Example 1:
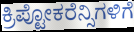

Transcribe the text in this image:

ಕ್ರಿಪ್ಟೋಕರೆನ್ಸಿಗಳಿಗೆ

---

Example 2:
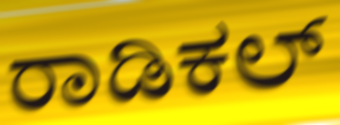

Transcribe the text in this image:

ರಾಡಿಕಲ್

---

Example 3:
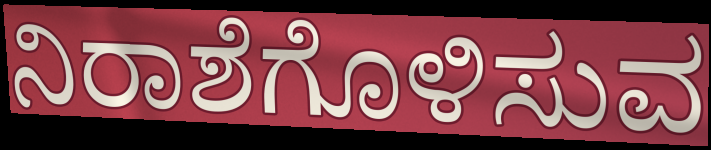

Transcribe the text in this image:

ನಿರಾಶೆಗೊಳಿಸುವ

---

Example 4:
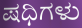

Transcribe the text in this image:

ಷಧಿಗಳು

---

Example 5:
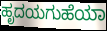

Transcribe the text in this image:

ಹೃದಯಗುಹೆಯಾ